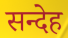
सन्देह